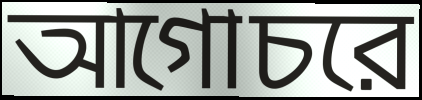
আগোচরে